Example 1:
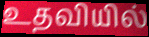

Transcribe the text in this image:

உதவியில்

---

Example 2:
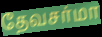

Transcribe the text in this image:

தேவசர்மா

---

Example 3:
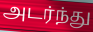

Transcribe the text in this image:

அடர்ந்து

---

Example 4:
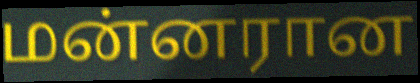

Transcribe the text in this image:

மன்னரான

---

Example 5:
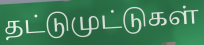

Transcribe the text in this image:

தட்டுமுட்டுகள்